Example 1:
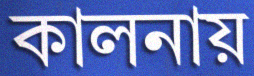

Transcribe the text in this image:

কালনায়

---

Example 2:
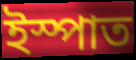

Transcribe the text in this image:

ইস্পাত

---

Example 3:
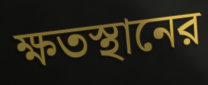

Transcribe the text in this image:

ক্ষতস্থানের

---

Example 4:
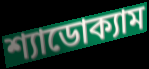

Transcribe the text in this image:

শ্যাডোক্যাম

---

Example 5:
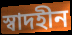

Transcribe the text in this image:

স্বাদহীন